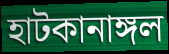
হাটকানাঙ্গল